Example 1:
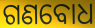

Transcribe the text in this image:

ଗଣବୋଧ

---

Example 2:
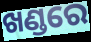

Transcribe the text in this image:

ଖଣ୍ଡରେ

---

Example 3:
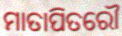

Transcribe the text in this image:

ମାତାପିତରୌ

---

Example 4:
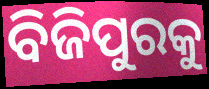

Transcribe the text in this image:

ବିଜିପୁରକୁ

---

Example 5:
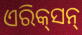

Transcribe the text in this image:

ଏରିକ୍‌ସନ୍